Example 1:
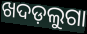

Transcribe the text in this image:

ଖଦଡ଼ଲୁଗା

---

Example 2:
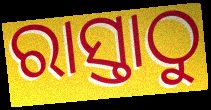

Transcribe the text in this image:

ରାସ୍ତାଠୁ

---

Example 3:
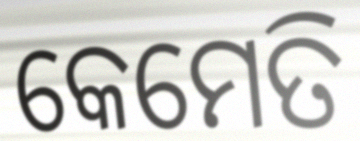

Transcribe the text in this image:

କେମେତି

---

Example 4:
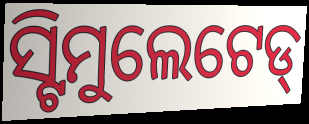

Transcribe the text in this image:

ସ୍ଟିମୁଲେଟେଡ୍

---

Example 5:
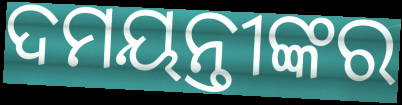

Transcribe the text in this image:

ଦମୟନ୍ତୀଙ୍କର